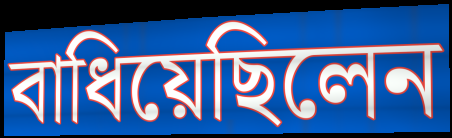
বাধিয়েছিলেন